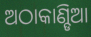
ଅଠାକାଣ୍ଡିଆ